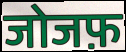
जोजफ़